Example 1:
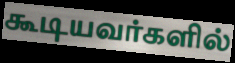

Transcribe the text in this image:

கூடியவர்களில்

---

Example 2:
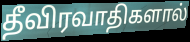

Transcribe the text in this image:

தீவிரவாதிகளால்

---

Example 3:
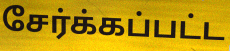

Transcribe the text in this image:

சேர்க்கப்பட்ட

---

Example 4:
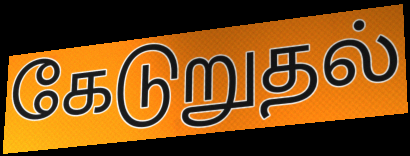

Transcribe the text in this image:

கேடுறுதல்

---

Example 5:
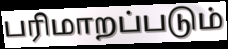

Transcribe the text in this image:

பரிமாறப்படும்